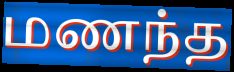
மணந்த